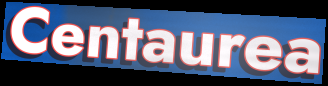
Centaurea